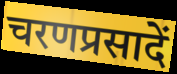
चरणप्रसादें